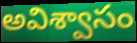
అవిశ్వాసం